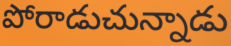
పోరాడుచున్నాడు